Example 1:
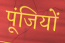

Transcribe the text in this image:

पूंजियों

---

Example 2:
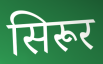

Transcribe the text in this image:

सिरूर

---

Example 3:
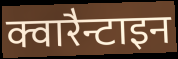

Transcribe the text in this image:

क्वारैन्टाइन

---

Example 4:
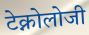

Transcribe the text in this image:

टेक्नोलोजी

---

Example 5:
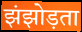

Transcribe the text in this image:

झंझोड़ता